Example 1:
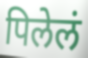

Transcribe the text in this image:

पिलेलं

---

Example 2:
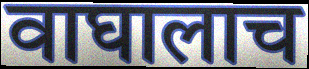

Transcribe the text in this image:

वाघालाच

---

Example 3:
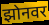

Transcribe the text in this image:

झोनवर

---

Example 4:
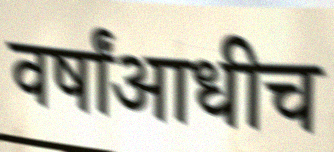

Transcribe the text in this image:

वर्षांआधीच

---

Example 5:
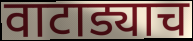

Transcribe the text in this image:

वाटाड्याच